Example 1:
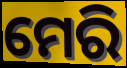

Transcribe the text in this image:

ମେରି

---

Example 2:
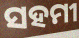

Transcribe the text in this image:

ସହମୀ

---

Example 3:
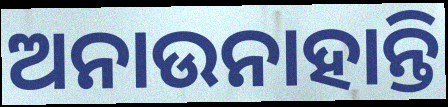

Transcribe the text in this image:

ଅନାଉନାହାନ୍ତି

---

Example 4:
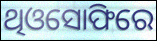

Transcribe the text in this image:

ଥିଓସୋଫିରେ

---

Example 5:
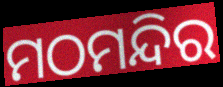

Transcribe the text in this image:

ମଠମନ୍ଦିର